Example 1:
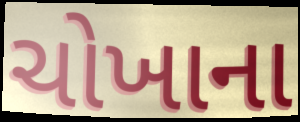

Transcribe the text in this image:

ચોખાના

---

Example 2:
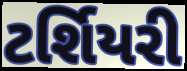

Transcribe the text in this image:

ટર્શિયરી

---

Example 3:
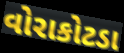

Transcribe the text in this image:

વોરાકોટડા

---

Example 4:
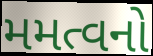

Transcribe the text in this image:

મમત્વનો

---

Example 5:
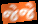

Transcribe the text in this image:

જેજે